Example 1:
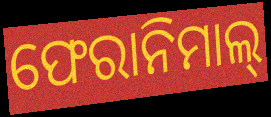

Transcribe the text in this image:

ଫେରାନିମାଲ୍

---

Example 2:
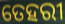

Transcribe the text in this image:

ତେହରୀ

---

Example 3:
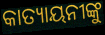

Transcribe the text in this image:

କାତ୍ୟାୟନୀଙ୍କୁ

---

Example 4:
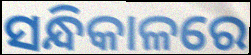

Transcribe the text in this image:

ସନ୍ଧିକାଳରେ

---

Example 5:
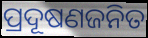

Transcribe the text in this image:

ପ୍ରଦୂଷଣଜନିତ